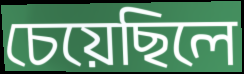
চেয়েছিলে